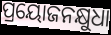
ପ୍ରୟୋଜନକ୍ଷୁଧା